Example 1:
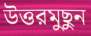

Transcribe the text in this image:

উত্তরমুছুন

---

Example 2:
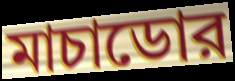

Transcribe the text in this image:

মাচাডোর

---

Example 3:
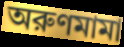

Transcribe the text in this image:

অরুণমামা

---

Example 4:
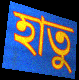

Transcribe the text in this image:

হাতু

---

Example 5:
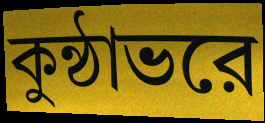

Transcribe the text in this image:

কুন্ঠাভরে